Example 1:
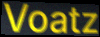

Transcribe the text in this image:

Voatz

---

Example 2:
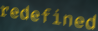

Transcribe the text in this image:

redefined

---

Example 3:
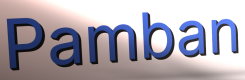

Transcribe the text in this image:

Pamban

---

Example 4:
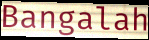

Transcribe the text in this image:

Bangalah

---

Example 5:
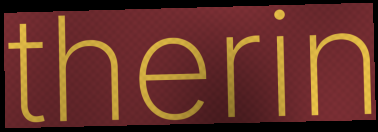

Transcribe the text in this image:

therin